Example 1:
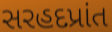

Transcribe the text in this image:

સરહદપ્રાંત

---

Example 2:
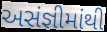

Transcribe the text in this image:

અસંજ્ઞીમાંથી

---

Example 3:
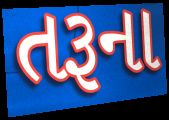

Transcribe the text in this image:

તરૂના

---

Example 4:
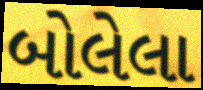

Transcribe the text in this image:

બોલેલા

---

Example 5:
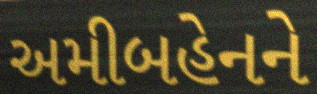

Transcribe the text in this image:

અમીબહેનને